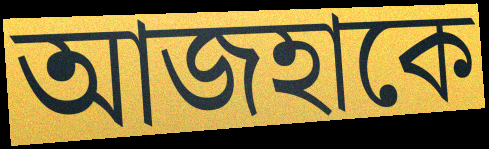
আজহাকে